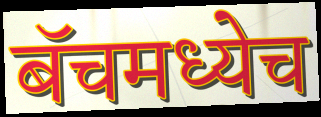
बॅचमध्येच